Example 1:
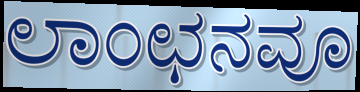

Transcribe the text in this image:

ಲಾಂಛನವೂ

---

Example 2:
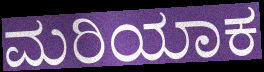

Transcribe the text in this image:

ಮರಿಯಾಕ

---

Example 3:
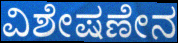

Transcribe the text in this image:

ವಿಶೇಷಣೇನ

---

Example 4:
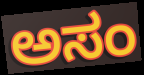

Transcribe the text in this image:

ಅಸಂ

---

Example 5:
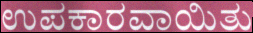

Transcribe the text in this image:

ಉಪಕಾರವಾಯಿತು